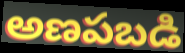
అణపబడి